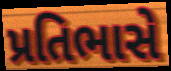
પ્રતિભાસે